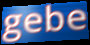
gebe